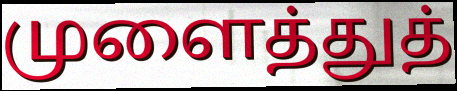
முளைத்துத்